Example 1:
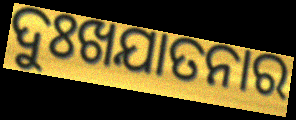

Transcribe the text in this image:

ଦୁଃଖଯାତନାର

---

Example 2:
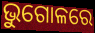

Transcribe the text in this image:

ଭୁଗୋଳରେ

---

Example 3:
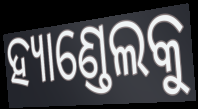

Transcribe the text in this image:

ହ୍ୟାଣ୍ଡେଲକୁ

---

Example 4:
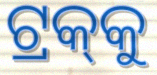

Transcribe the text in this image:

ଟ୍ରକ୍‍କୁ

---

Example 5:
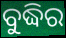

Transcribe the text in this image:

ବୁଦ୍ଧିର